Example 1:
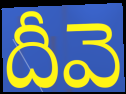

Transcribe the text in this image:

దీవె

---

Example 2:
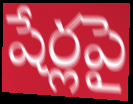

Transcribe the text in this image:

షేర్లపై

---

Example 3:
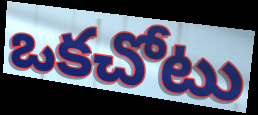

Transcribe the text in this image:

ఒకచోటు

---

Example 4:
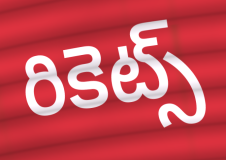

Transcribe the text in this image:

రికెట్స్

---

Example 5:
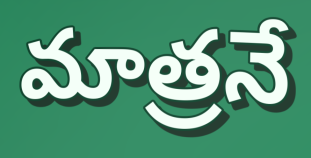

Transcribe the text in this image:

మాత్రనే